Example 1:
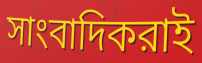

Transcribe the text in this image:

সাংবাদিকরাই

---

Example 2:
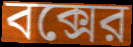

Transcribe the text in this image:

বক্সের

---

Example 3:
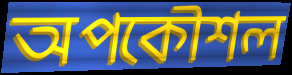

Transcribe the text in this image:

অপকৌশল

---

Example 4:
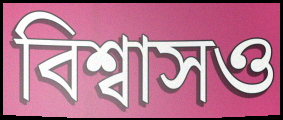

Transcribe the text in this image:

বিশ্বাসও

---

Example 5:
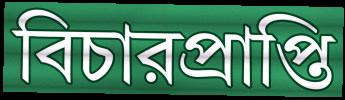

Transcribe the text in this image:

বিচারপ্রাপ্তি